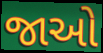
જાઓ